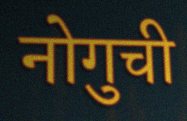
नोगुची